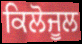
ਕਿਲੋਜੂਲ